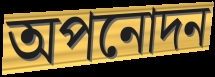
অপনোদন